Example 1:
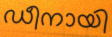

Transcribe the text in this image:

ഡീനായി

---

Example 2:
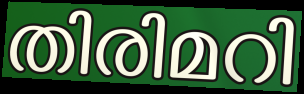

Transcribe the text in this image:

തിരിമറി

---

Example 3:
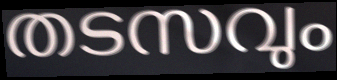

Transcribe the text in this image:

തടസവും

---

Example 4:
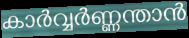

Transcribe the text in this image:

കാർവ്വർണ്ണന്താൻ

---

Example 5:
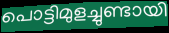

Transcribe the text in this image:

പൊട്ടിമുളച്ചുണ്ടായി